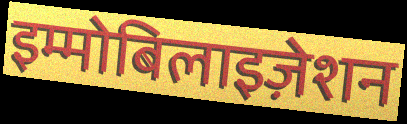
इम्मोबिलाइज़ेशन